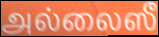
அல்லைஸீ